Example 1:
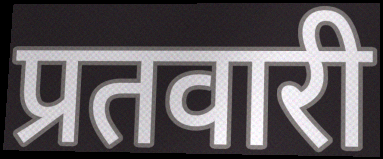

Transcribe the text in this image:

प्रतवारी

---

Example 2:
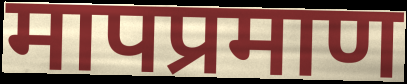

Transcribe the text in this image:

मापप्रमाण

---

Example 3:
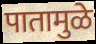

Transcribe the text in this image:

पातामुळे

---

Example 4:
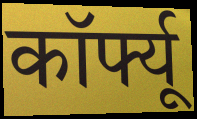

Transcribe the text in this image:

कॉर्फ्यू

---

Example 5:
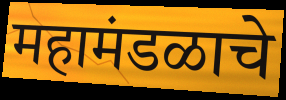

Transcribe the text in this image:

महामंडळाचे